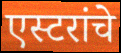
एस्टरांचे